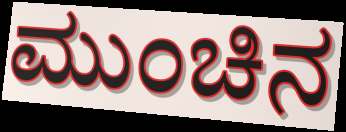
ಮುಂಚಿನ